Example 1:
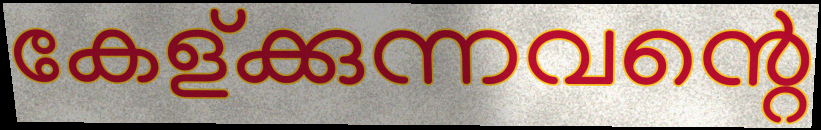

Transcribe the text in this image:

കേള്ക്കുന്നവന്റെ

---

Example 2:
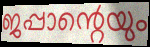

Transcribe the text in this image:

ജപ്പാന്റെയും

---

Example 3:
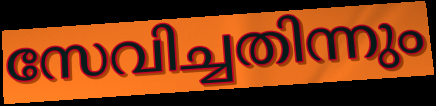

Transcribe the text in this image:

സേവിച്ചതിന്നും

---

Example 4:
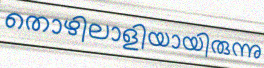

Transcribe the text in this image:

തൊഴിലാളിയായിരുന്നു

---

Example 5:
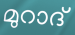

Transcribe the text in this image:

മുറാദ്